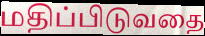
மதிப்பிடுவதை